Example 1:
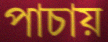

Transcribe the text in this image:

পাচায়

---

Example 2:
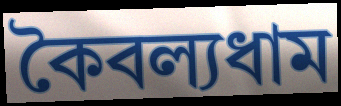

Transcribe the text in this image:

কৈবল্যধাম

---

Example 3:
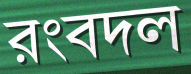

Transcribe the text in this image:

রংবদল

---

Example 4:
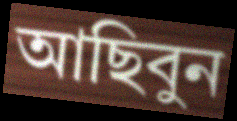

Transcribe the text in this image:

আছিবুন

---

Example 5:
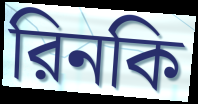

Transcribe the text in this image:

রিনকি